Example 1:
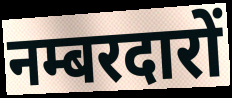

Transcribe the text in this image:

नम्बरदारों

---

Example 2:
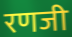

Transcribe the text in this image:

रणजी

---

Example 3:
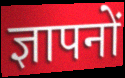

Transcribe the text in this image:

ज्ञापनों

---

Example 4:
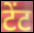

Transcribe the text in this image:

टेंट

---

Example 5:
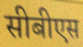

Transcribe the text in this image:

सीबीएस